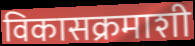
विकासक्रमाशी